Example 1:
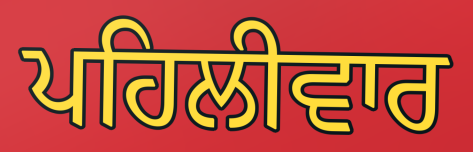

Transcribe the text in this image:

ਪਹਿਲੀਵਾਰ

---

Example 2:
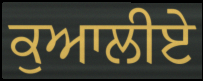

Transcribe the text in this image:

ਕੁਆਲੀਏ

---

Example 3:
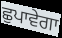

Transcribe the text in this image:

ਛੁਪਾਵੇਗਾ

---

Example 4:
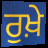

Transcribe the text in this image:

ਰੁਖ਼ੇ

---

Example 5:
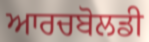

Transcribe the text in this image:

ਆਰਚਬੋਲਡੀ